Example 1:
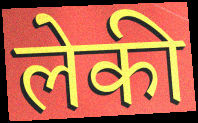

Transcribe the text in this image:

लेकी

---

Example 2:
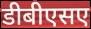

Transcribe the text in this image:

डीबीएसए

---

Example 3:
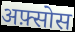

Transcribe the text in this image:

अफ़्सोस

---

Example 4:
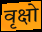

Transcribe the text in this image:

वृक्षो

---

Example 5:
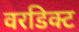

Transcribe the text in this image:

वरडिक्ट